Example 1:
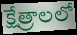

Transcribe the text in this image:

క్షేత్రాలలో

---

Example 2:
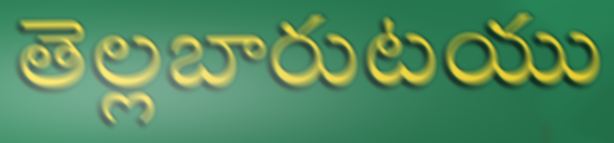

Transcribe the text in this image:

తెల్లబారుటయు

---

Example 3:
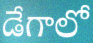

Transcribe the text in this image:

డేగాలో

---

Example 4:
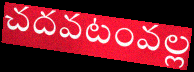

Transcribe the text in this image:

చదవటంవల్ల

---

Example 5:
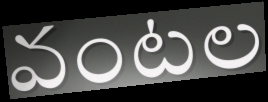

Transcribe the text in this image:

వంటల